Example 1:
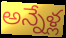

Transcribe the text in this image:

అన్నేళ్ల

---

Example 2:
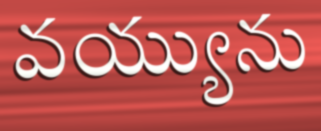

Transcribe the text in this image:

వయ్యును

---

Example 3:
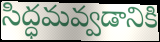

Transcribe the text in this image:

సిద్ధమవ్వడానికి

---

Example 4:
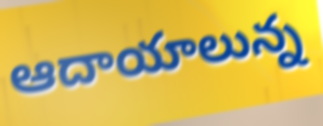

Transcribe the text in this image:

ఆదాయాలున్న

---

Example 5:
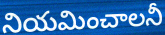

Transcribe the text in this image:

నియమించాలనీ